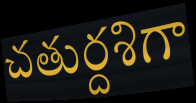
చతుర్దశిగా